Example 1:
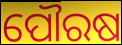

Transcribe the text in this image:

ପୌରଷ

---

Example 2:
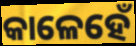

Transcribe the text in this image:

କାଳେହେଁ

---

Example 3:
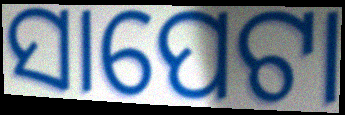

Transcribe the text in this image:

ସାପେଟା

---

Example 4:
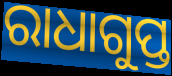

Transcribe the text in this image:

ରାଧାଗୁପ୍ତ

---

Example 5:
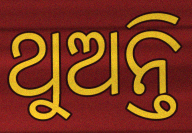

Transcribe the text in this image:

ଥୁଅନ୍ତି